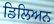
ਡਿਲਿਅਨ